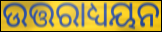
ଉତ୍ତରାଧ୍ୟୟନ